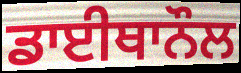
ਡਾਈਥਾਨੌਲ